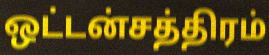
ஒட்டன்சத்திரம்